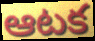
ఆటక